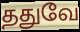
ததுவே